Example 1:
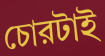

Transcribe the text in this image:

চোরটাই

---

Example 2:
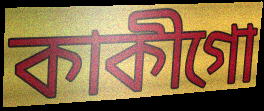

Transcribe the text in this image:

কাকীগো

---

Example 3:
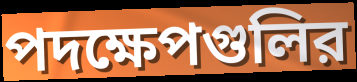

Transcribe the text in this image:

পদক্ষেপগুলির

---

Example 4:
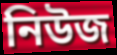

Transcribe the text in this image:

নিউজ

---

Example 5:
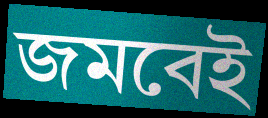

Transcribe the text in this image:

জমবেই